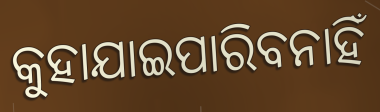
କୁହାଯାଇପାରିବନାହିଁ